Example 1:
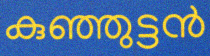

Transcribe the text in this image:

കുഞ്ഞുട്ടൻ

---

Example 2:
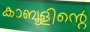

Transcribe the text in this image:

കാബൂളിന്റെ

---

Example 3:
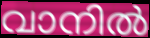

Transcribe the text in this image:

വാനിൽ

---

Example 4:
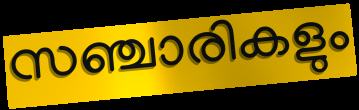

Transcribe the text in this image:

സഞ്ചാരികളും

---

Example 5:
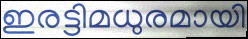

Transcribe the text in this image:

ഇരട്ടിമധുരമായി